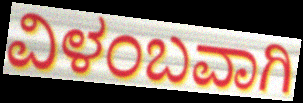
ವಿಳಂಬವಾಗಿ